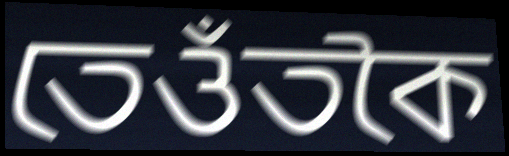
তেওঁতকৈ